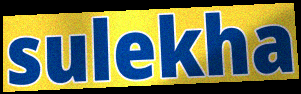
sulekha